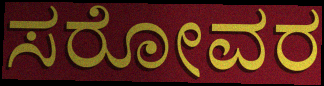
ಸರೋವರ